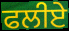
ਫਲੀਏ